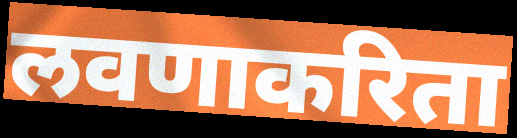
लवणाकरिता